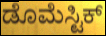
ಡೊಮೆಸ್ಟಿಕ್